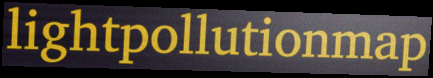
lightpollutionmap